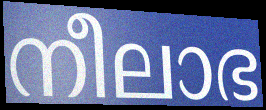
നീലാഭ